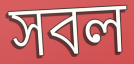
সবল